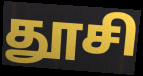
தூசி